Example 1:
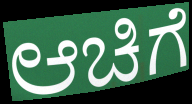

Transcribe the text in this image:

ಆಚಿಗೆ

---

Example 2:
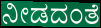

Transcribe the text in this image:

ನೀಡದಂತೆ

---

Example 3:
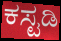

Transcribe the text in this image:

ಕಸ್ಟಡಿ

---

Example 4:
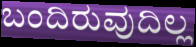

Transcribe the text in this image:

ಬಂದಿರುವುದಿಲ್ಲ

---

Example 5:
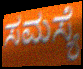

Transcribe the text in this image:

ಸಮಸ್ಯೆ